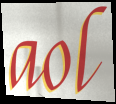
aol